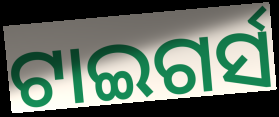
ଟାଇଗର୍ସ